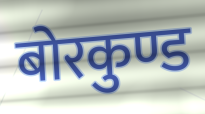
बोरकुण्ड